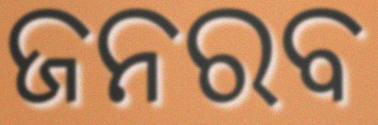
ଜନରବ